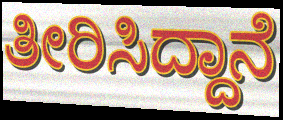
ತೀರಿಸಿದ್ದಾನೆ